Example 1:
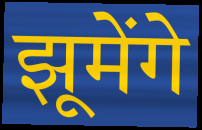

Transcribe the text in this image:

झूमेंगे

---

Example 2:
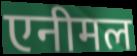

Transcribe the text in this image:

एनीमल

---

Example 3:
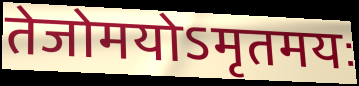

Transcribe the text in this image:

तेजोमयोऽमृतमयः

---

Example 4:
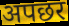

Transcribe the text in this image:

अपछर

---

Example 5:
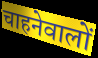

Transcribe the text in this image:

चाहनेवालों